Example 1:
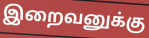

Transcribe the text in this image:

இறைவனுக்கு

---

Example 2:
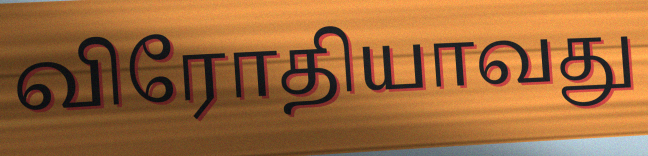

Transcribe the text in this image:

விரோதியாவது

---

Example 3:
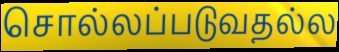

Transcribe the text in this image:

சொல்லப்படுவதல்ல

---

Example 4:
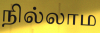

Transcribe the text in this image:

நில்லாம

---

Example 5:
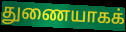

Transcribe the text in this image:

துணையாகக்